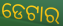
ଡେଟାର